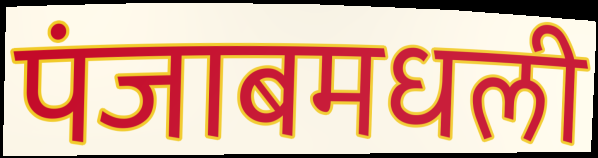
पंजाबमधली